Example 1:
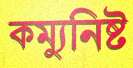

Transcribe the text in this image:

কম্যুনিষ্ট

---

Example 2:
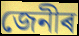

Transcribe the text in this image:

জেনীৰ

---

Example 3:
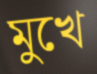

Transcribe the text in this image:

মুখে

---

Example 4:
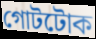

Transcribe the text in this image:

গোটটোক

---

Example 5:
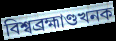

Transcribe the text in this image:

বিশ্বব্ৰহ্মাণ্ডখনক